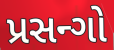
પ્રસન્ગો